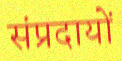
संप्रदायों